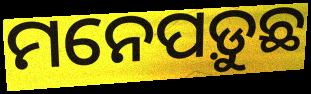
ମନେପଡ଼ୁଛ